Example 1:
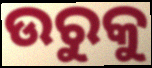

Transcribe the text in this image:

ଉରୁକୁ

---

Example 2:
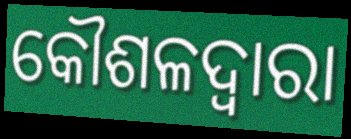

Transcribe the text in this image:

କୌଶଳଦ୍ୱାରା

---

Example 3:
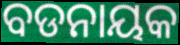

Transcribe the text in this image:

ବଡନାୟକ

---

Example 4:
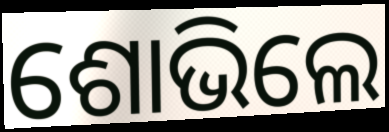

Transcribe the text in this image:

ଶୋଭିଲେ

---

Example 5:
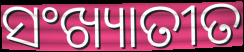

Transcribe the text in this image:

ସଂଖ୍ୟାତୀତ